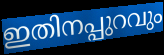
ഇതിനപ്പുറവും